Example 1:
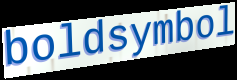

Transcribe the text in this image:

boldsymbol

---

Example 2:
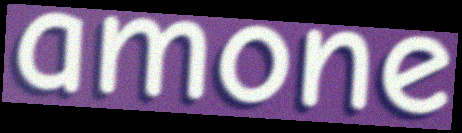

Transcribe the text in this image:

amone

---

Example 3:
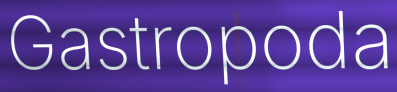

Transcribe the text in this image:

Gastropoda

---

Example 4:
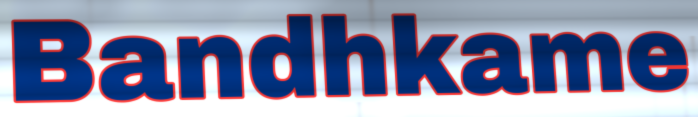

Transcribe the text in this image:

Bandhkame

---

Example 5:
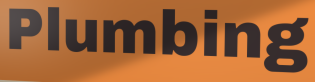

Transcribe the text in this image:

Plumbing